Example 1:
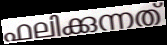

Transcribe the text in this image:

ഫലിക്കുന്നത്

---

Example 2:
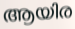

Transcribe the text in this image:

ആയിര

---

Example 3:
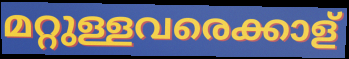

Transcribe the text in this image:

മറ്റുള്ളവരെക്കാള്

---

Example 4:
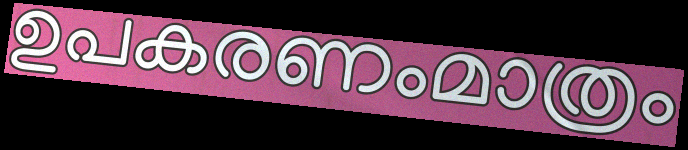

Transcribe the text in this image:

ഉപകരണംമാത്രം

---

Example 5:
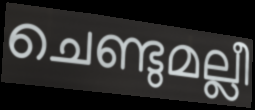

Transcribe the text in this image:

ചെണ്ടുമല്ലീ